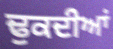
ਢੁਕਦੀਆਂ